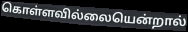
கொள்ளவில்லையென்றால்